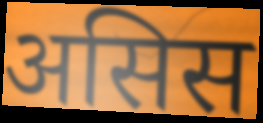
असिस